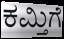
ಕಮ್ತಿಗೆ